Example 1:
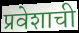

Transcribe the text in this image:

प्रवेशाची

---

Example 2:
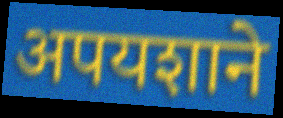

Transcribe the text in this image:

अपयशाने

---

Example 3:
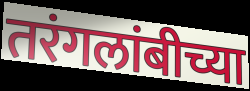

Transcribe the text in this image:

तरंगलांबीच्या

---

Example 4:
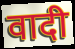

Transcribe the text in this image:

वादी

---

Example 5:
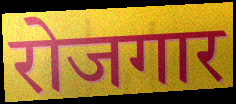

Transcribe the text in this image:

रोजगार